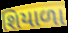
શિયાળા